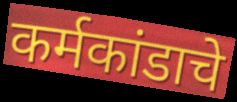
कर्मकांडाचे